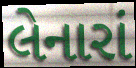
લેનારાં